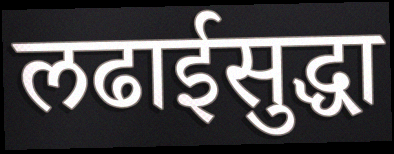
लढाईसुद्धा